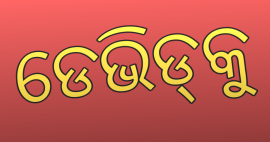
ଡେଭିଡ୍‍କୁ